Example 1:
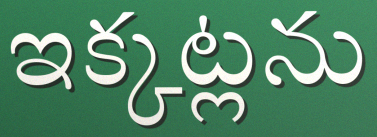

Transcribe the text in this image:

ఇక్కట్లను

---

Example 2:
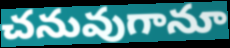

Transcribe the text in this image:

చనువుగానూ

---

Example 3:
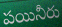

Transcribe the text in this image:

పయినీరు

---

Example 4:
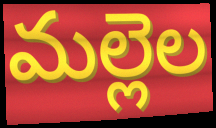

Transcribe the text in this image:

మల్లెల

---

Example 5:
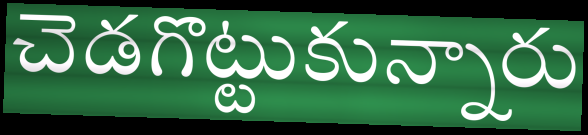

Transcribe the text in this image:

చెడగొట్టుకున్నారు